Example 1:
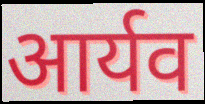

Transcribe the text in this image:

आर्यव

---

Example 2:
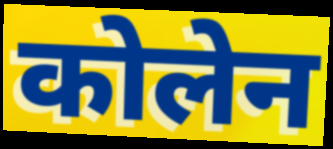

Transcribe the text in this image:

कोलेन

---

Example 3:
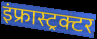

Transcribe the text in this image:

इंफ्रास्ट्रक्टर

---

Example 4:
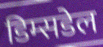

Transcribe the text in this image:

डिम्सडेल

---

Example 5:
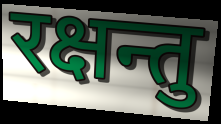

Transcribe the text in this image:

रक्षन्तु